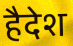
हैदेश